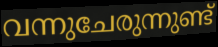
വന്നുചേരുന്നുണ്ട്